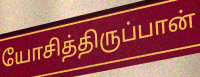
யோசித்திருப்பான்